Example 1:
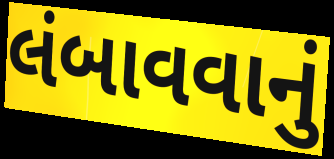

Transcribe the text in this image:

લંબાવવાનું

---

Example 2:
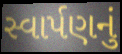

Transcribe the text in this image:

સ્વાર્પણનું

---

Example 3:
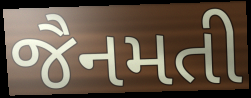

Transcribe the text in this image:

જૈનમતી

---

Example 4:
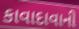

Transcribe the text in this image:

કાવાદાવાની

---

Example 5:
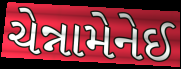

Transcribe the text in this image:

ચેન્નામેનેઈ